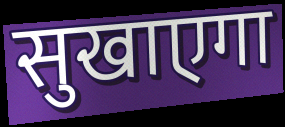
सुखाएगा